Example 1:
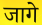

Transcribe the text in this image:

जागे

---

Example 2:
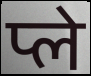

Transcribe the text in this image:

प्ले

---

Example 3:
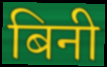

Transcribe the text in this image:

बिनी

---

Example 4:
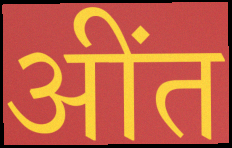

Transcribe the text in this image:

अींत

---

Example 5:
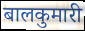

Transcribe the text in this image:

बालकुमारी